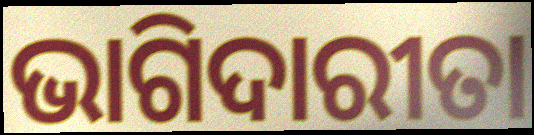
ଭାଗିଦାରୀତା